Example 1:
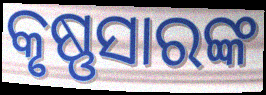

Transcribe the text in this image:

କୃଷ୍ଣସାରଙ୍କ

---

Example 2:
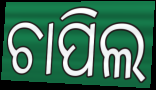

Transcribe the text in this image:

ଚାପିଲ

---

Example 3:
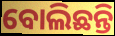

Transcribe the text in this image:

ବୋଲିଛନ୍ତି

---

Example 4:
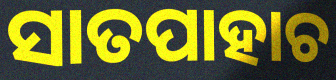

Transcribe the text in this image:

ସାତପାହାଚ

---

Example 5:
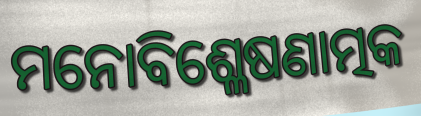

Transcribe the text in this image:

ମନୋବିଶ୍ଳେଷଣାତ୍ମକ